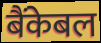
बैंकेबल